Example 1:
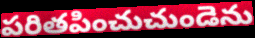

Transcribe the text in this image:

పరితపించుచుండెను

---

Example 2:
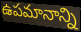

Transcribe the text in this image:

ఉపమానాన్ని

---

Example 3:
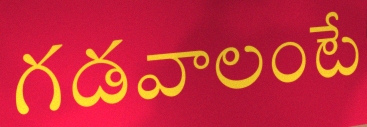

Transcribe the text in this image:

గడవాలంటే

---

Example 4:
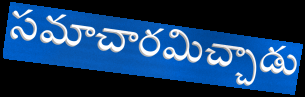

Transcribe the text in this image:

సమాచారమిచ్చాడు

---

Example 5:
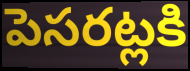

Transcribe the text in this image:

పెసరట్లకి